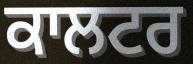
ਕਾਲਟਰ